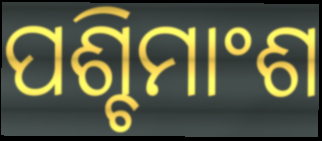
ପଶ୍ଚିମାଂଶ